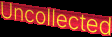
Uncollected